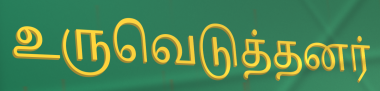
உருவெடுத்தனர்